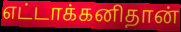
எட்டாக்கனிதான்